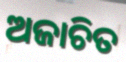
ଅଜାଚିତ